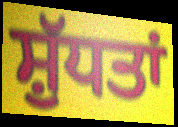
ਸ਼ੁੱਧਤਾਂ